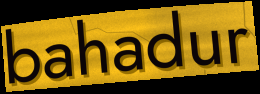
bahadur